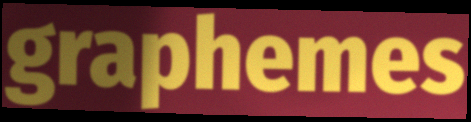
graphemes